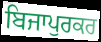
ਬਿਜਾਪੁਰਕਰ